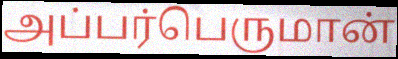
அப்பர்பெருமான்